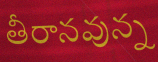
తీరానవున్న